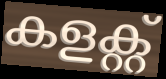
കളക്റ്റ്